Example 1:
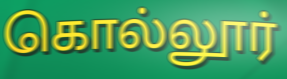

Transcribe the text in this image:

கொல்லூர்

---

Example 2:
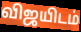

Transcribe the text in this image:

விஜயிடம்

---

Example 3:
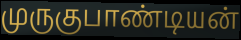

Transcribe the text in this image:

முருகுபாண்டியன்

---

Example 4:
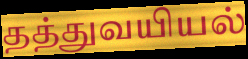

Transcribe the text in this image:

தத்துவயியல்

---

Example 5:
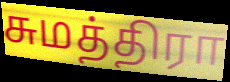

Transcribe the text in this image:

சுமத்திரா